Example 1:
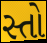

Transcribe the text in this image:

સ્તો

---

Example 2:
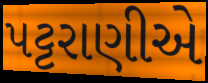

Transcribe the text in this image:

પટ્ટરાણીએ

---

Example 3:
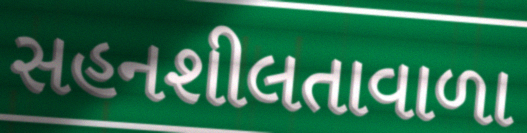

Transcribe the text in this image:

સહનશીલતાવાળા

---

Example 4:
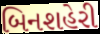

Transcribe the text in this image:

બિનશહેરી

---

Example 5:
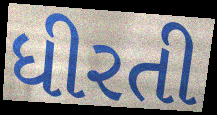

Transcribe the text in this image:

ધીરતી